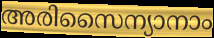
അരിസൈന്യാനാം